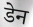
डेन